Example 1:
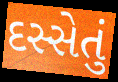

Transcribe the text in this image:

દસ્સેતું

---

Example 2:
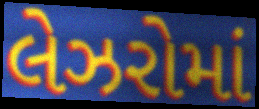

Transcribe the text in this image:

લેઝરોમાં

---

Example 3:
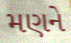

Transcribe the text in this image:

મણને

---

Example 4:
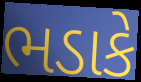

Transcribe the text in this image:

ભડાકે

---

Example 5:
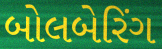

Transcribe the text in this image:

બોલબેરિંગ